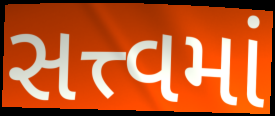
સત્ત્વમાં